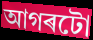
আগৰটো